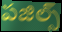
పజిల్స్